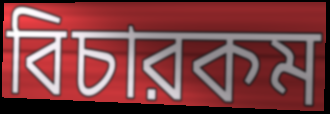
বিচারকম